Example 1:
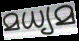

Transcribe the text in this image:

മധ്യമ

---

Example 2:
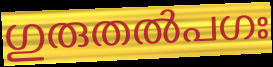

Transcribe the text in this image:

ഗുരുതൽപഗഃ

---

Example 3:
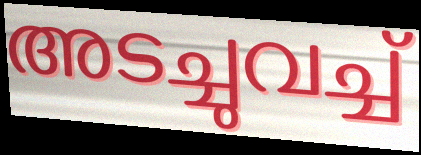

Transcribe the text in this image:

അടച്ചുവച്ച്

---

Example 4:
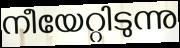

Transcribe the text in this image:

നീയേറ്റിടുന്നു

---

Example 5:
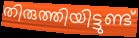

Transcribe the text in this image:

തിരുത്തിയിട്ടുണ്ട്